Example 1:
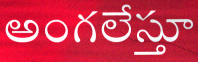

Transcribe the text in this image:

అంగలేస్తూ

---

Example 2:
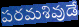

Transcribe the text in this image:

పరమశివుడే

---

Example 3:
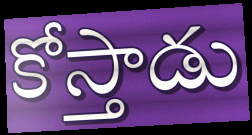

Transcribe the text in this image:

కోస్తాడు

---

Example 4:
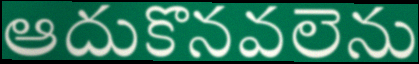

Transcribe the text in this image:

ఆదుకొనవలెను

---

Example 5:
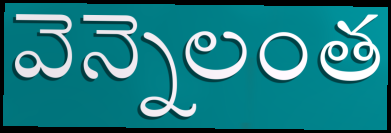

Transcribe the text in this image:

వెన్నెలంత